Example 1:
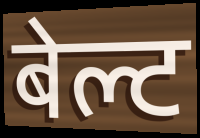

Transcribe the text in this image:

बेल्ट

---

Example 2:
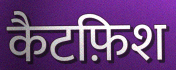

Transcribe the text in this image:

कैटफ़िश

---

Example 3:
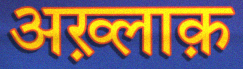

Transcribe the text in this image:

अख़्लाक़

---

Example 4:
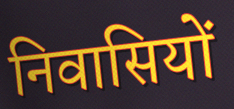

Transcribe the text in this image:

निवासियों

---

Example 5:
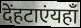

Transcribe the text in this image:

देंहटाएंयहाँ